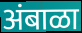
अंबाळा